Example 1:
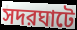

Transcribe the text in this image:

সদরঘাটে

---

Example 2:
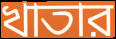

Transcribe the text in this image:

খাতার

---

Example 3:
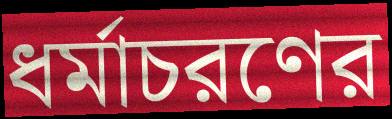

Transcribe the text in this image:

ধর্মাচরণের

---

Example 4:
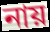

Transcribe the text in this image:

নায়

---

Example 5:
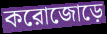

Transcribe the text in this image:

করোজোড়ে